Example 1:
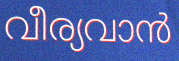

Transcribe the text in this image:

വീര്യവാൻ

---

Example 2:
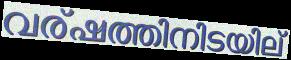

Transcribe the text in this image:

വര്ഷത്തിനിടയില്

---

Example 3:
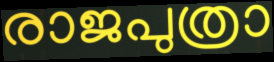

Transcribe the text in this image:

രാജപുത്രാ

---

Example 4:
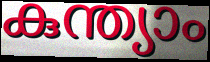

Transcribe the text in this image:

കുന്ത്യാം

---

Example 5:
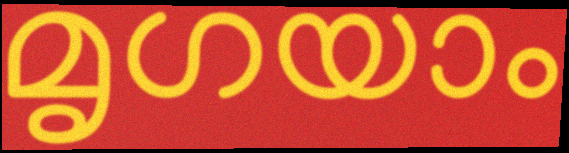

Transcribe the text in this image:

മൃഗയാം